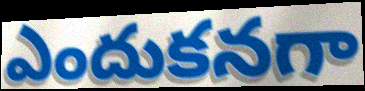
ఎందుకనగా